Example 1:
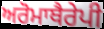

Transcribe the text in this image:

ਅਰੋਮਾਥੈਰੇਪੀ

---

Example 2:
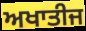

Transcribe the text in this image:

ਅਖਾਤੀਜ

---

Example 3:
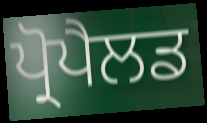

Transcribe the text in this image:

ਪ੍ਰੋਪੈਲਡ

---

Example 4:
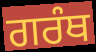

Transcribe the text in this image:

ਗਰੰਥ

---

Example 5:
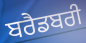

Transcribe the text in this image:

ਬਰੈਡਬਰੀ